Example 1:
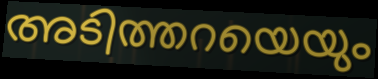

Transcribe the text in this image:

അടിത്തറയെയും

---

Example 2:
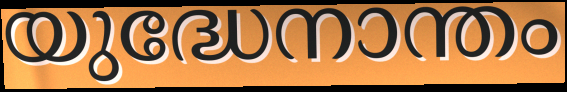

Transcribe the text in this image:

യുദ്ധേനാന്തം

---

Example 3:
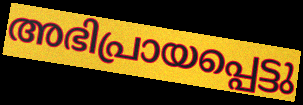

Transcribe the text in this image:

അഭിപ്രായപ്പെട്ടു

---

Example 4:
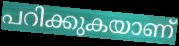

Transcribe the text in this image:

പറിക്കുകയാണ്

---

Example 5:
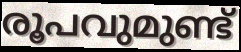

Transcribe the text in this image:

രൂപവുമുണ്ട്